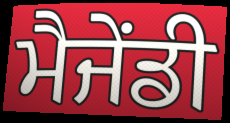
ਮੈਜੇਂਡੀ